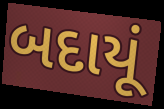
બદાયૂં